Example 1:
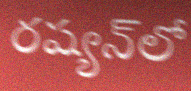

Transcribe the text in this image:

రష్యన్‌లో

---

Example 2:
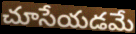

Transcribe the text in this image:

చూసేయడమే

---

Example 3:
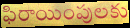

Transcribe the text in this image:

ఫిరాయింపులకు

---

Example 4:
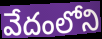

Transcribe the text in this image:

వేదంలోని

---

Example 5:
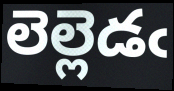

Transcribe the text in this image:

లెల్లెడఁ